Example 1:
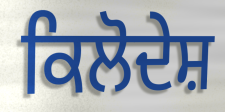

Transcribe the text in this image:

ਕਿਲੋਦੇਸ਼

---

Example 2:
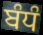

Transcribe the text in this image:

ਬੰਧੰ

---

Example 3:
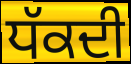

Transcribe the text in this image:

ਧੱਕਦੀ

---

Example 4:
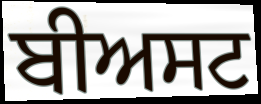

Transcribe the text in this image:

ਬੀਅਸਟ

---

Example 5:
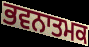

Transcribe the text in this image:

ਭਵਨਾਤਮਕ